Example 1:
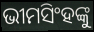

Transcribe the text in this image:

ଭୀମସିଂହଙ୍କୁ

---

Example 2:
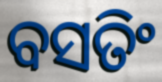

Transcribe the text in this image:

ବସତିଂ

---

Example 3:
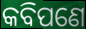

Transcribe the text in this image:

କବିପଣେ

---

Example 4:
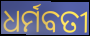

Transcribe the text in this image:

ଧର୍ମବତୀ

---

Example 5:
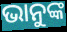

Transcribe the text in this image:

ଭାନୁଙ୍କ